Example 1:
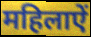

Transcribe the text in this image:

महिलाऐं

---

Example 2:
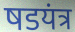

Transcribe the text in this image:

षडयंत्र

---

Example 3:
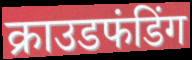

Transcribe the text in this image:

क्राउडफंडिंग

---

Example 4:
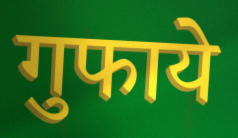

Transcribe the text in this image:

गुफाये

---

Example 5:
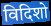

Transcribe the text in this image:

विदिशो